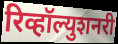
रिव्हॉल्युशनरी